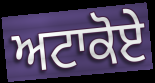
ਅਟਾਕੋਏ